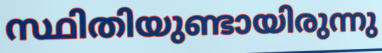
സ്ഥിതിയുണ്ടായിരുന്നു